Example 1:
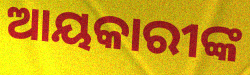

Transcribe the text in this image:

ଆୟକାରୀଙ୍କ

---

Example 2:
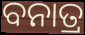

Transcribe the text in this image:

ବନାତ୍ର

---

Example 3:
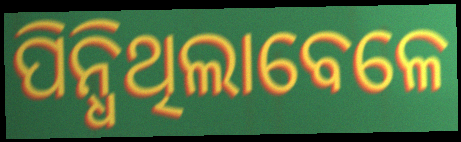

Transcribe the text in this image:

ପିନ୍ଧିଥିଲାବେଳେ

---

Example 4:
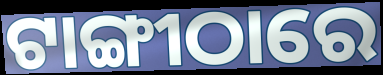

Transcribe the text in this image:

ଟାଙ୍ଗୀଠାରେ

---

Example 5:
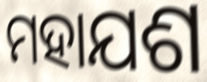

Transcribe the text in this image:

ମହାଯଶ